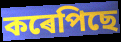
কৰেপিছে